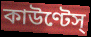
কাউণ্টেস্